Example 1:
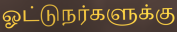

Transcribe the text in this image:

ஓட்டுநர்களுக்கு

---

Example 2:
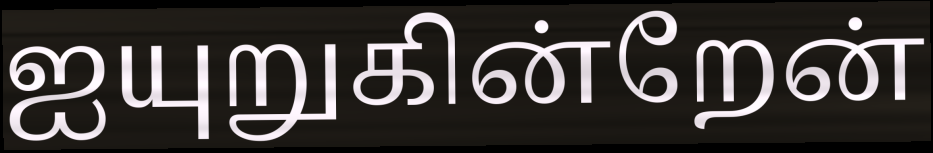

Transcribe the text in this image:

ஐயுறுகின்றேன்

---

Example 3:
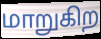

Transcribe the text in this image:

மாறுகிற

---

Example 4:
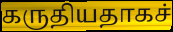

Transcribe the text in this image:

கருதியதாகச்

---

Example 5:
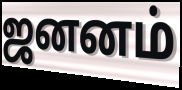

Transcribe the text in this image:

ஜனனம்